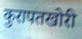
कुरापतखोरी